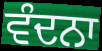
ਵੰਦਨਾ